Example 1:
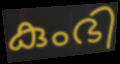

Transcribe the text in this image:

കുംഭി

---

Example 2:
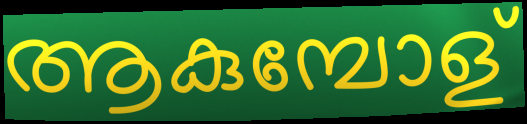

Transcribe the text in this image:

ആകുമ്പോള്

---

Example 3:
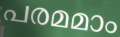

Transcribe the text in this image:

പരമമാം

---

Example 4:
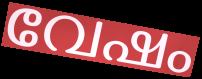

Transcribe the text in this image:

വേഷം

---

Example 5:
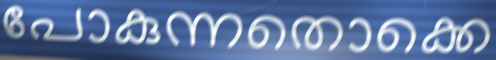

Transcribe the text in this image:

പോകുന്നതൊക്കെ